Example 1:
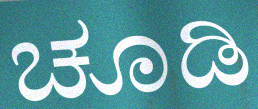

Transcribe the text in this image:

ಚೂಡಿ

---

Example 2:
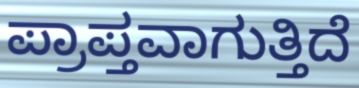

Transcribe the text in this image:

ಪ್ರಾಪ್ತವಾಗುತ್ತಿದೆ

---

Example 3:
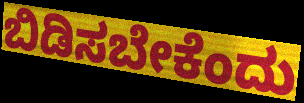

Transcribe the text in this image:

ಬಿಡಿಸಬೇಕೆಂದು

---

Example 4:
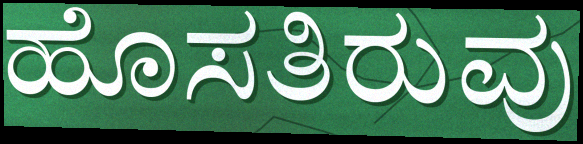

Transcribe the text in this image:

ಹೊಸತಿರುವು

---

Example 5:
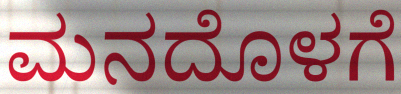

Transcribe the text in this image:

ಮನದೊಳಗೆ